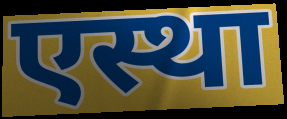
एस्था